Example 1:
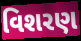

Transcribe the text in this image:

વિશરણ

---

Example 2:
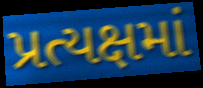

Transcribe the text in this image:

પ્રત્‍યક્ષમાં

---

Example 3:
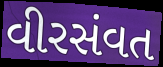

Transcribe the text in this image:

વીરસંવત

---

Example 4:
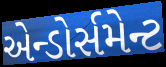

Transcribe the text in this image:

એન્ડોર્સમેન્ટ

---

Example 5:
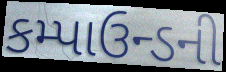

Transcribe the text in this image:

કમ્પાઉન્ડની